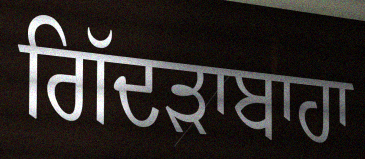
ਗਿੱਦੜਾਬਾਹਾ